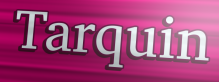
Tarquin